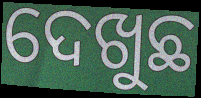
ଦେଖୁଛ